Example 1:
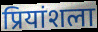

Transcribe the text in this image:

प्रियांशला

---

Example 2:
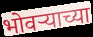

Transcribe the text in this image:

भोवऱ्याच्या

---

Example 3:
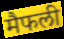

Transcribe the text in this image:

मैफली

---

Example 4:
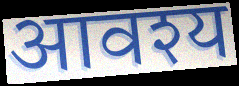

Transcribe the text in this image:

आवश्य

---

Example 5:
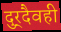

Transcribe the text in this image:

दुर्दैवही